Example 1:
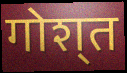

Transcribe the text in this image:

गोश्त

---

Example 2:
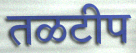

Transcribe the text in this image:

तळटीप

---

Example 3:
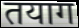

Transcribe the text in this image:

तयाग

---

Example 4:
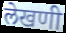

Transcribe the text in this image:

लेखणी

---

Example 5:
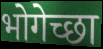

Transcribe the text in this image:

भोगेच्छा